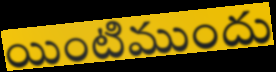
యింటిముందు